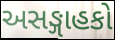
અસઙ્ગાહકો